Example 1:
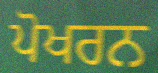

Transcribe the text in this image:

ਪੋਖਰਨ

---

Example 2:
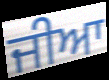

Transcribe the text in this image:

ਜੀਆ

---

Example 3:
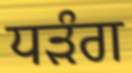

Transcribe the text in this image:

ਧੜੰਗ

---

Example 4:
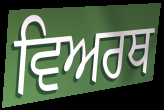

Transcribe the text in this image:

ਵਿਅਰਥ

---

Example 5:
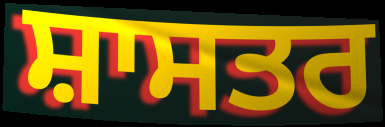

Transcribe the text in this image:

ਸ਼ਾਸਤਰ